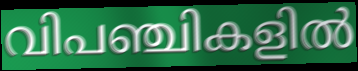
വിപഞ്ചികളിൽ